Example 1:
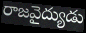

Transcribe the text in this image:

రాజవైద్యుడు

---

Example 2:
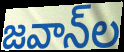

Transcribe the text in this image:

జవాన్‌ల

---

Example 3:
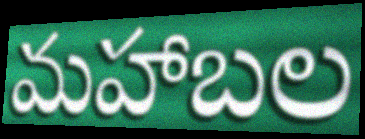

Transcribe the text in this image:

మహాబల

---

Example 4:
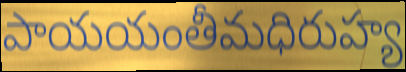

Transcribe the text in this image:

పాయయంతీమధిరుహ్య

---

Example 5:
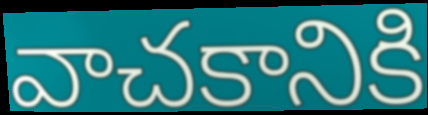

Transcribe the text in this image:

వాచకానికి